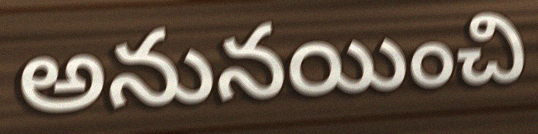
అనునయించి